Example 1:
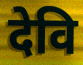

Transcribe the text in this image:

देवि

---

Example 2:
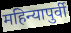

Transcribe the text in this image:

महिन्यापुर्वी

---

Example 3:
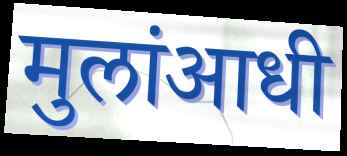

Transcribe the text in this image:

मुलांआधी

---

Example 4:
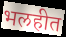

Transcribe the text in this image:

भलहीत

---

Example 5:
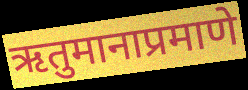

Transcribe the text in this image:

ऋतुमानाप्रमाणे